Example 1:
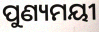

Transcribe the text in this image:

ପୁଣ୍ୟମୟୀ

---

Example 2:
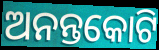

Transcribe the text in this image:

ଅନନ୍ତକୋଟି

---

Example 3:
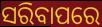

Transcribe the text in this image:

ସରିବାପରେ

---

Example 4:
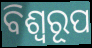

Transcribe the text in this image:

ବିଶ୍ୱରୂପ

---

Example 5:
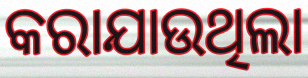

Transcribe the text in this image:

କରାଯାଉଥିଲା